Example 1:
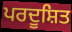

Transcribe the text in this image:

ਪਰਦੂਸ਼ਿਤ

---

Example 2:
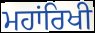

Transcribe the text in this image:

ਮਹਾਂਰਿਖੀ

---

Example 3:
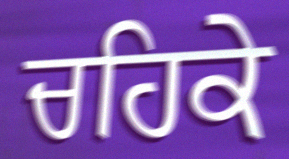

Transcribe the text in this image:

ਚਹਿਕੇ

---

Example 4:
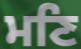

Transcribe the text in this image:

ਮਣਿ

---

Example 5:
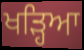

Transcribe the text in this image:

ਖੜ੍ਹਿਆ